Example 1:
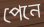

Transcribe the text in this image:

পেনে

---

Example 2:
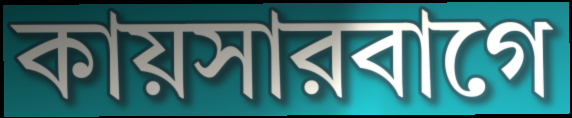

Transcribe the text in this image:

কায়সারবাগে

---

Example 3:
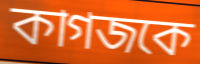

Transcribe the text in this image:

কাগজকে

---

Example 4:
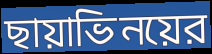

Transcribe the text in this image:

ছায়াভিনয়ের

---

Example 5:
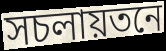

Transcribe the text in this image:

সচলায়তনে